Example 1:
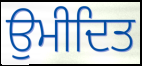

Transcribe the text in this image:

ਉਮੀਦਿਤ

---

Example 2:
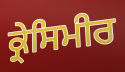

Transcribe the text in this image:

ਕ੍ਰੇਸਿਮੀਰ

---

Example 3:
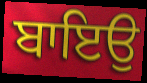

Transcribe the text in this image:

ਬਾਇਉ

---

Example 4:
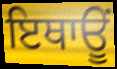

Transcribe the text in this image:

ਇਥਾਊਂ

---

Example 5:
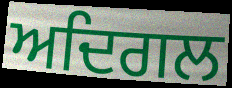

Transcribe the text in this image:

ਅਦਿਗਲ